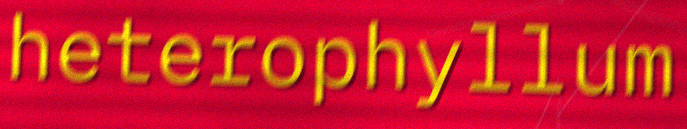
heterophyllum